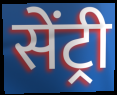
सेंट्री